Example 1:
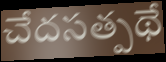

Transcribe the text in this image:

చేదసత్పథే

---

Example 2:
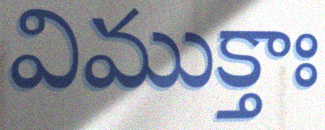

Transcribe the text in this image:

విముక్తాః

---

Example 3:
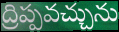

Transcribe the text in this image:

ద్రిప్పవచ్చును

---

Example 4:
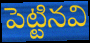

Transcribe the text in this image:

పెట్టినవి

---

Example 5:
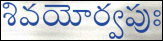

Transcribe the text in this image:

శివయోర్వపుః